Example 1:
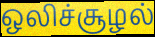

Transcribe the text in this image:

ஒலிச்சூழல்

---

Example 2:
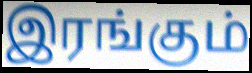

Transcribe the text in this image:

இரங்கும்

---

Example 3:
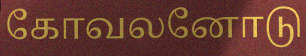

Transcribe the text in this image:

கோவலனோடு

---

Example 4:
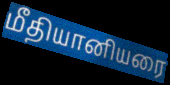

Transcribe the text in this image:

மீதியானியரை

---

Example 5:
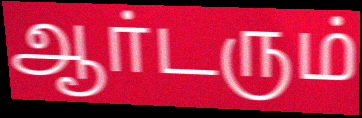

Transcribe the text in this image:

ஆர்டரும்